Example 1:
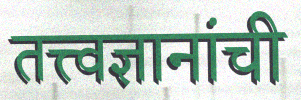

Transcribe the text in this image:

तत्त्वज्ञानांची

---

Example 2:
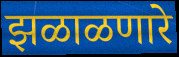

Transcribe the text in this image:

झळाळणारे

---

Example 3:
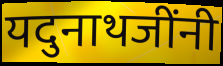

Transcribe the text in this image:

यदुनाथजींनी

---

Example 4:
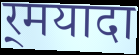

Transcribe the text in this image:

र्मयादा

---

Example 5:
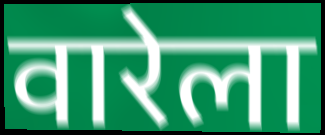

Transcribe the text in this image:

वारेला